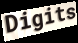
Digits